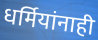
धर्मियांनाही